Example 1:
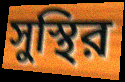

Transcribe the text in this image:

সুস্থির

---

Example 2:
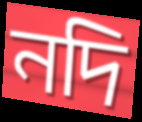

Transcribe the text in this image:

নদি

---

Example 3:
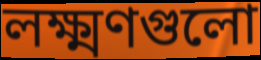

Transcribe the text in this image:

লক্ষ্মণগুলো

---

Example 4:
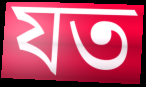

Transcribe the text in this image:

যত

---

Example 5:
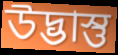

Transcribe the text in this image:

উদ্ভাস্তু